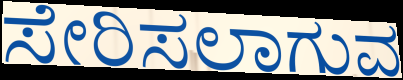
ಸೇರಿಸಲಾಗುವ